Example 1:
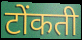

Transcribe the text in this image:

टोंकती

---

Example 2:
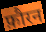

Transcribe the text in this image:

फ़ौरन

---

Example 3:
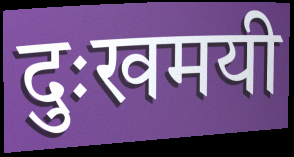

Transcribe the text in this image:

दुःखमयी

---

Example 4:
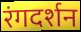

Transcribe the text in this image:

रंगदर्शन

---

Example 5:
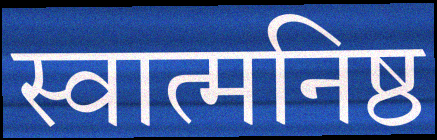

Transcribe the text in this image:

स्वात्मनिष्ठ